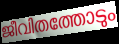
ജീവിതത്തോടും